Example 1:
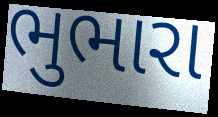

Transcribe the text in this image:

ભુભારા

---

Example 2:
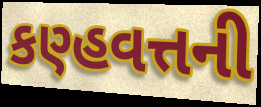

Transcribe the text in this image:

કણ્હવત્તની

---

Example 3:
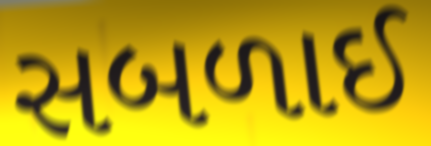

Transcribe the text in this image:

સબળાઈ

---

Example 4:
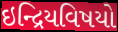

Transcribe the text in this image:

ઇન્દ્રિયવિષયો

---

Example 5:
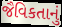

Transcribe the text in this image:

જૈવિકતાનું